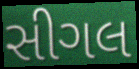
સીગલ